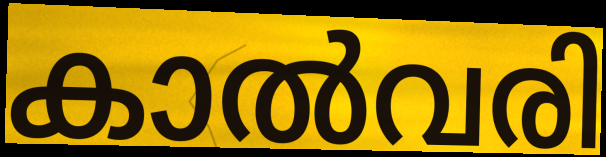
കാൽവരി